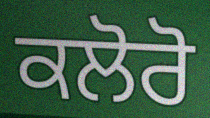
ਕਲੋਰੋ